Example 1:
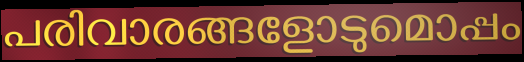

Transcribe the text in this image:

പരിവാരങ്ങളോടുമൊപ്പം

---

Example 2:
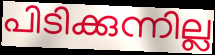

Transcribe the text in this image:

പിടിക്കുന്നില്ല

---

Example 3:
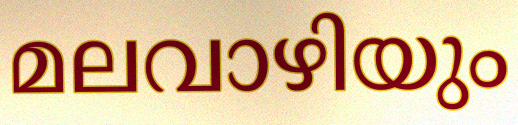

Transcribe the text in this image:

മലവാഴിയും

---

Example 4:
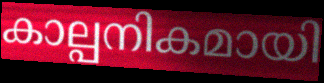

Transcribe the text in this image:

കാല്പനികമായി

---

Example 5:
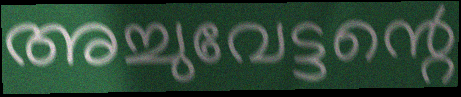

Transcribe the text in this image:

അച്ചുവേട്ടന്റെ